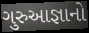
ગુરુઆજ્ઞાનો